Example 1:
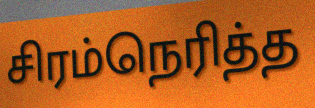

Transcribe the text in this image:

சிரம்நெரித்த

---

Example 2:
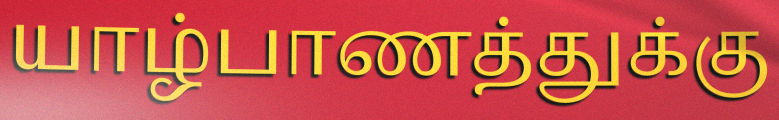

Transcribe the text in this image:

யாழ்பாணத்துக்கு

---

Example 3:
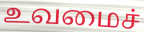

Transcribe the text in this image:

உவமைச்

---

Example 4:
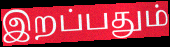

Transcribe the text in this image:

இறப்பதும்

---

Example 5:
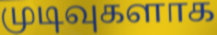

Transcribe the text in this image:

முடிவுகளாக